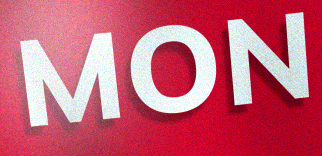
MON